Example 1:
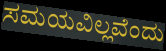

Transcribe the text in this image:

ಸಮಯವಿಲ್ಲವೆಂದು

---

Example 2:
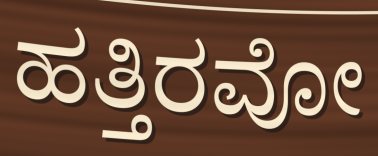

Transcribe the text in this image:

ಹತ್ತಿರವೋ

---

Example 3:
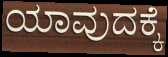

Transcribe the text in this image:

ಯಾವುದಕ್ಕೆ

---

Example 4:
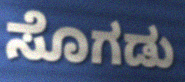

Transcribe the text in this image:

ಸೊಗಡು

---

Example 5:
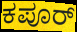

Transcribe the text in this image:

ಕಪೂರ್